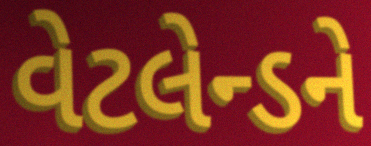
વેટલેન્ડને